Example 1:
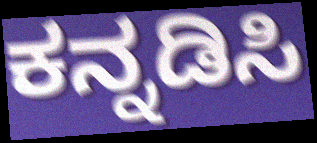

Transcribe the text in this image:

ಕನ್ನಡಿಸಿ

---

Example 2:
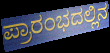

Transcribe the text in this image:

ಪ್ರಾರಂಭದಲ್ಲಿನ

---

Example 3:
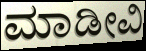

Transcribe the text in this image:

ಮಾಡೀವಿ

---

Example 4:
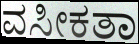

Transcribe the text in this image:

ವಸೀಕತಾ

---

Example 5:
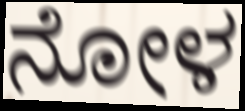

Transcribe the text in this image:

ನೋಳ